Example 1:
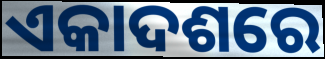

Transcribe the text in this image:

ଏକାଦଶରେ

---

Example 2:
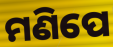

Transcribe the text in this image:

ମଣିପେ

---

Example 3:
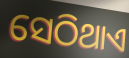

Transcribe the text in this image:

ସେଠିଥାଏ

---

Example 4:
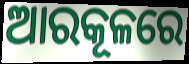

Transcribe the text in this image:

ଆରକୂଳରେ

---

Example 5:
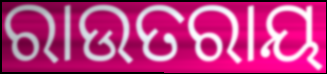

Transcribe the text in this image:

ରାଉତରାୟ